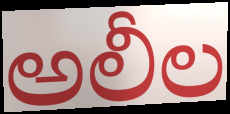
అలీల